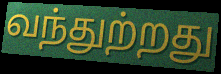
வந்துற்றது